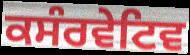
ਕਸੰਰਵੇਟਿਵ